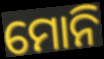
ମୋନି